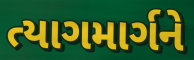
ત્યાગમાર્ગને